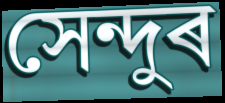
সেন্দুৰ